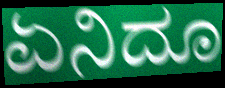
ಏನಿದೂ